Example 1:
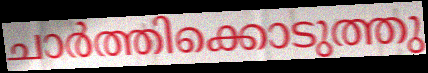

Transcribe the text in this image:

ചാർത്തിക്കൊടുത്തു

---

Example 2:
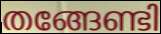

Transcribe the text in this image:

തങ്ങേണ്ടി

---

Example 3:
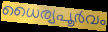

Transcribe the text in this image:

ധൈര്യപൂർവം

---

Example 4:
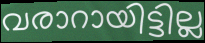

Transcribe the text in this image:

വരാറായിട്ടില്ല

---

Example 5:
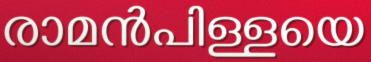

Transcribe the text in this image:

രാമൻപിള്ളയെ